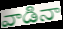
వాడినా